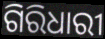
ଗିରିଧାରୀ